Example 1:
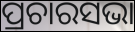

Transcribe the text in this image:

ପ୍ରଚାରସଭା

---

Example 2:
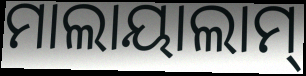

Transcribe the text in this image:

ମାଲାୟାଲାମ୍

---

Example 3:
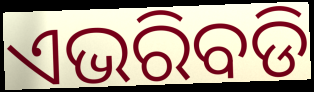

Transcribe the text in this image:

ଏଭରିବଡି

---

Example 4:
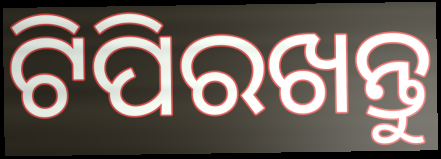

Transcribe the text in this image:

ଟିପିରଖନ୍ତୁ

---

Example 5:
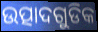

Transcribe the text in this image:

ଉତ୍ପାଦଗୁଡିକ